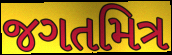
જગતમિત્ર